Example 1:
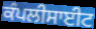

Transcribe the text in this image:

ਕੰਪਲੀਸਾਈਟ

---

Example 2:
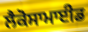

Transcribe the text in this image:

ਲੈਕੋਸਾਮਾਈਡ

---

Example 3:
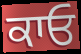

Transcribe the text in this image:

ਕਾਓ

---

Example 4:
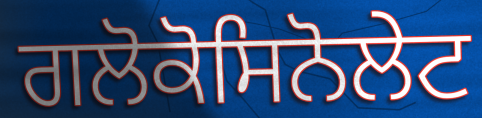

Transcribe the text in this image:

ਗਲੋਕੋਸਿਨੋਲੇਟ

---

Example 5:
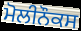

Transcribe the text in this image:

ਮੋਲੀਨੌਕਸ